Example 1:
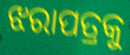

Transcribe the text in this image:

ଝରାପତ୍ରକୁ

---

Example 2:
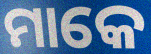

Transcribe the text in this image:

ମାକେ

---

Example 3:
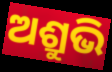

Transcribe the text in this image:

ଅଶ୍ରୁଭି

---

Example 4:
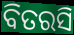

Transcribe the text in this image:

ବିତରସି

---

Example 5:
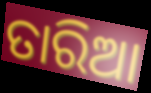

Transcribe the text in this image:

ତାରିଆ